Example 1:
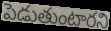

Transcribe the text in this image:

పెడుతుంటారని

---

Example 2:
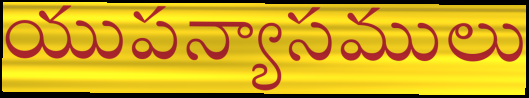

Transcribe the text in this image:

యుపన్యాసములు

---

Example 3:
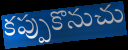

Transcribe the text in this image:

కప్పుకొనుచు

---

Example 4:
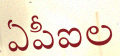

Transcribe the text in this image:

ఏపీఐల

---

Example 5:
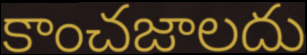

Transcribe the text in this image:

కాంచజాలదు